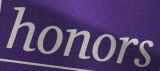
honors